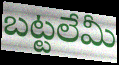
బట్టలేమీ